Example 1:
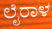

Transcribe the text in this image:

ಲೈರಾಳ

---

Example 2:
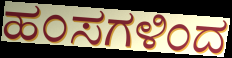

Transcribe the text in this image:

ಹಂಸಗಳಿಂದ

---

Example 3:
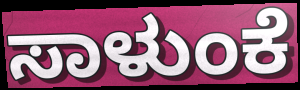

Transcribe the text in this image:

ಸಾಳುಂಕೆ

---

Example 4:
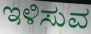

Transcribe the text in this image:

ಇಳಿಸುವ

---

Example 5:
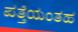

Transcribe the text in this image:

ಪತ್ತೆಯಂತಹ